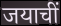
जयाचीं